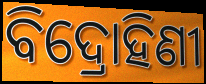
ବିଦ୍ରୋହିଣୀ